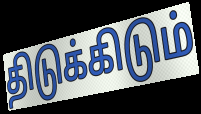
திடுக்கிடும்